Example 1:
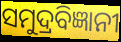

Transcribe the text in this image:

ସମୁଦ୍ରବିଜ୍ଞାନୀ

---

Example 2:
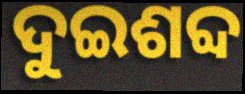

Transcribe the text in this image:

ଦୁଇଶବ୍ଦ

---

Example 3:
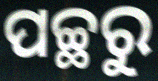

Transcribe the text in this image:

ପଚ୍ଛରୁ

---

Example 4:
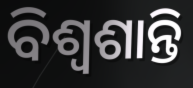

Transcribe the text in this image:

ବିଶ୍ୱଶାନ୍ତି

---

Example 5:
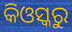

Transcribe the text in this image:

କିଓସ୍କରୁ